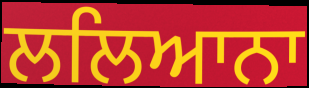
ਲਲਿਆਨਾ